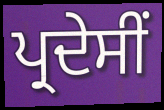
ਪ੍ਰਦੇਸੀਂ